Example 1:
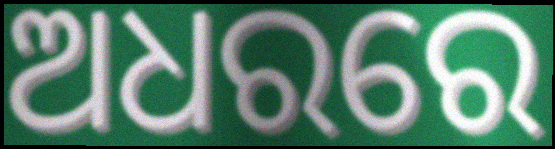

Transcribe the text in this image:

ଅଧରରେ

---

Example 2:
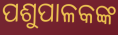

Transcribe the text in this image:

ପଶୁପାଳକଙ୍କ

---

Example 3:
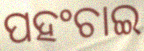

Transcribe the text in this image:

ପହଂଚାଇ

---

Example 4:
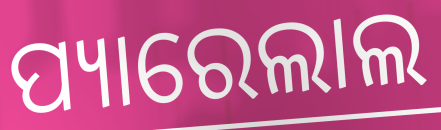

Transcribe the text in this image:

ପ୍ୟାରେଲାଲ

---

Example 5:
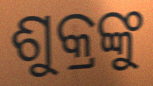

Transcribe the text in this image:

ଶୁକ୍ରଙ୍କୁ